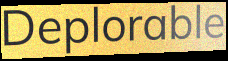
Deplorable